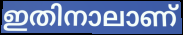
ഇതിനാലാണ്